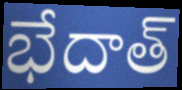
భేదాత్